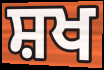
ਸ਼ਖ